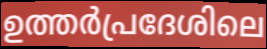
ഉത്തർപ്രദേശിലെ